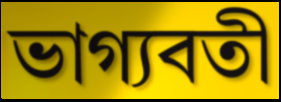
ভাগ্যবতী